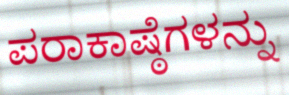
ಪರಾಕಾಷ್ಠೆಗಳನ್ನು